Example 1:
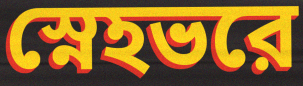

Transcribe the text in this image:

স্নেহভরে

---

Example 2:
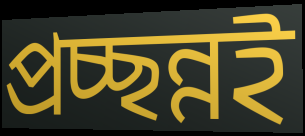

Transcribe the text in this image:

প্রচ্ছন্নই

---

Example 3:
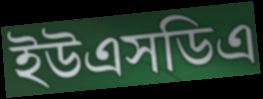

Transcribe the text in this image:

ইউএসডিএ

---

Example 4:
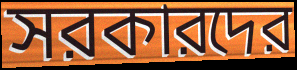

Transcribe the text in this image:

সরকারদের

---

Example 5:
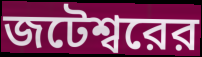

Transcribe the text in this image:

জটেশ্বরের